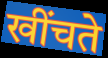
खींचते